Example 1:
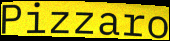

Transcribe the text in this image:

Pizzaro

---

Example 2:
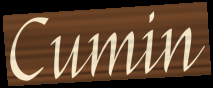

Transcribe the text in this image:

Cumin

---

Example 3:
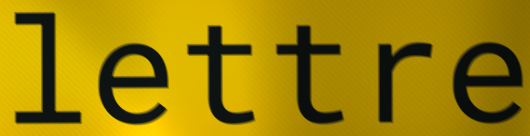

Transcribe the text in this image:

lettre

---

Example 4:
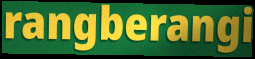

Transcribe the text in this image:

rangberangi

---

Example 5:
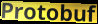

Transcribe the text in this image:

Protobuf